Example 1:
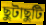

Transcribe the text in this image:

ছুটাছুটি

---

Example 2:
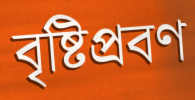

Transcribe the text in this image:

বৃষ্টিপ্রবণ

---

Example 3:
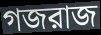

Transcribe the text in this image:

গজরাজ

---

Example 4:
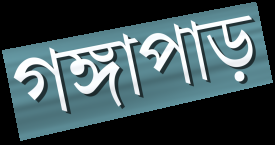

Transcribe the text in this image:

গঙ্গাপাড়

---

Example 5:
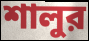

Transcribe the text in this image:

শালুর